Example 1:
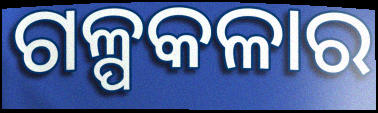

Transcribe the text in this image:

ଗଳ୍ପକଳାର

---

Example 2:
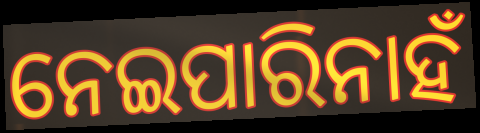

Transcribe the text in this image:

ନେଇପାରିନାହଁ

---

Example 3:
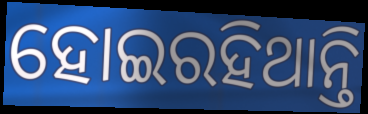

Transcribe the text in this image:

ହୋଇରହିଥାନ୍ତି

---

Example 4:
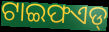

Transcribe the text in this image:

ଟାଇଫଏଡ୍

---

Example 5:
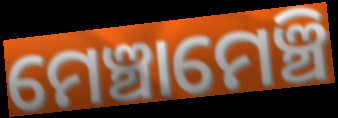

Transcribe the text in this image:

ମେଞ୍ଚାମେଞ୍ଚି